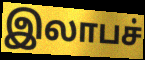
இலாபச்